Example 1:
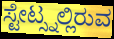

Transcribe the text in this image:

ಸ್ಟೇಟ್ಸ್ನಲ್ಲಿರುವ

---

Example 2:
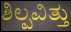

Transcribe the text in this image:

ಶಿಲ್ಪವಿತ್ತು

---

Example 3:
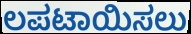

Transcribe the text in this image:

ಲಪಟಾಯಿಸಲು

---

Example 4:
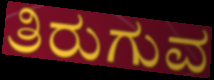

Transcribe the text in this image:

ತಿರುಗುವ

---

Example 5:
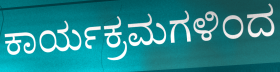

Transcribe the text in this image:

ಕಾರ್ಯಕ್ರಮಗಳಿಂದ